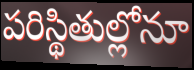
పరిస్థితుల్లోనూ